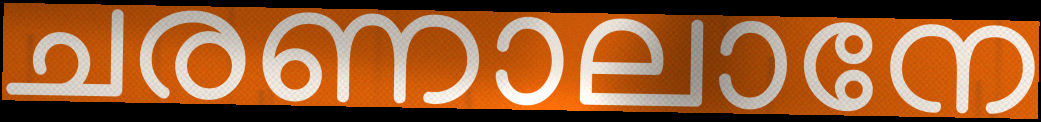
ചരണാലാനേ